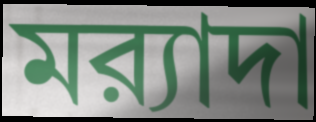
মর‍্যাদা